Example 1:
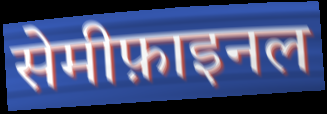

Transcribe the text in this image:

सेमीफ़ाइनल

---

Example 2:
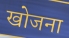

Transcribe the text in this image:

खोजना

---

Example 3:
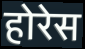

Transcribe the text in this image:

होरेस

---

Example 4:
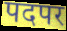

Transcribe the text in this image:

पदपर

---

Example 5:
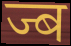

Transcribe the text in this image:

ज्ब